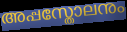
അപ്പസ്തോലനും